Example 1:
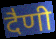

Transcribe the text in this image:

दैणी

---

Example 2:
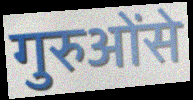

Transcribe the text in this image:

गुरुओंसे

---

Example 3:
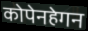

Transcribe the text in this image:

कोपेनहेगन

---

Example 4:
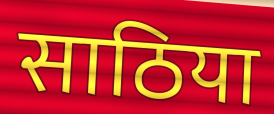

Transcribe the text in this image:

साठिया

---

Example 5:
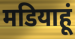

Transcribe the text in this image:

मडियाहूं